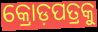
କ୍ରୋଡ଼ପତ୍ରକୁ